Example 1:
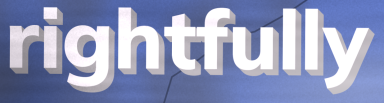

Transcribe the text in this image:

rightfully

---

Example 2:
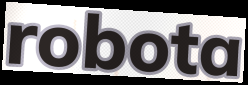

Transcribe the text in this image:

robota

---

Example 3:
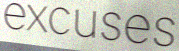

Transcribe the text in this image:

excuses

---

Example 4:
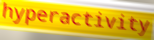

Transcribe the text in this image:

hyperactivity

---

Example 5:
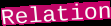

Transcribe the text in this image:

Relation